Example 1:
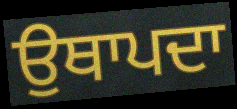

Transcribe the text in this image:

ਉਥਾਪਦਾ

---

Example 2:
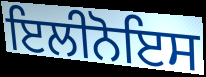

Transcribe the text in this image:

ਇਲੀਨੋਇਸ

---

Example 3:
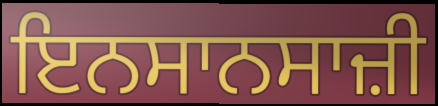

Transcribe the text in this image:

ਇਨਸਾਨਸਾਜ਼ੀ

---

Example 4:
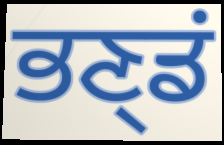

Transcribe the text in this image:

ਭਣ੍ਡਂ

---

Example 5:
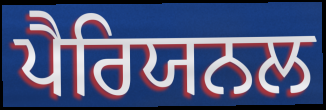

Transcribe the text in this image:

ਪੈਰਿਯਨਲ